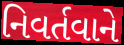
નિવર્તવાને